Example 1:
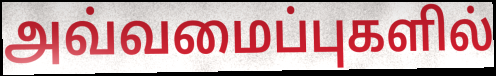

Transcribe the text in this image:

அவ்வமைப்புகளில்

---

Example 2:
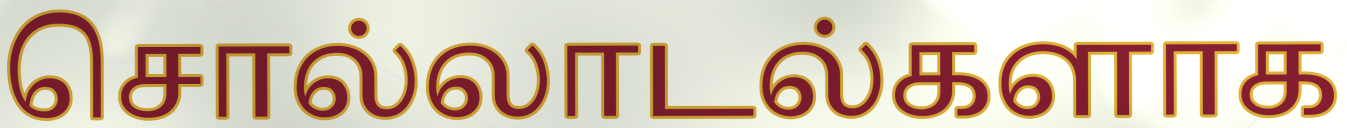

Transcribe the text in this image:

சொல்லாடல்களாக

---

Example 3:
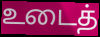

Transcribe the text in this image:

உடைத்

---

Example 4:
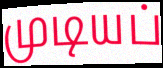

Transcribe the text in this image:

முடியப்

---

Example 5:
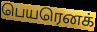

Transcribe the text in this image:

பெயரெனக்